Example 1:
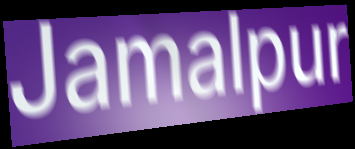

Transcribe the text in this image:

Jamalpur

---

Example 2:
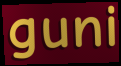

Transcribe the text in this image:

guni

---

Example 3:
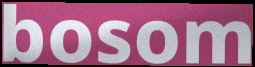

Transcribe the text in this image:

bosom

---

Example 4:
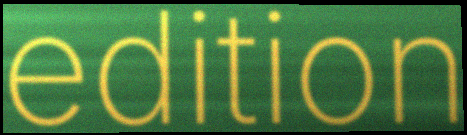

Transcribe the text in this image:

edition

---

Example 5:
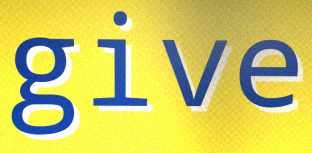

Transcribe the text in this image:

give